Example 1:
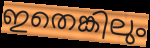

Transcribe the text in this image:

ഇതെങ്കിലും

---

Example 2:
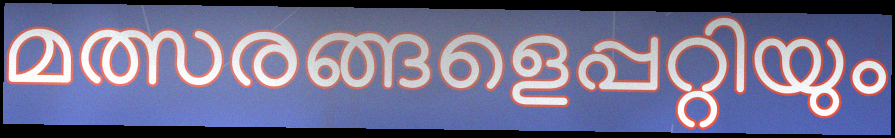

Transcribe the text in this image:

മത്സരങ്ങളെപ്പറ്റിയും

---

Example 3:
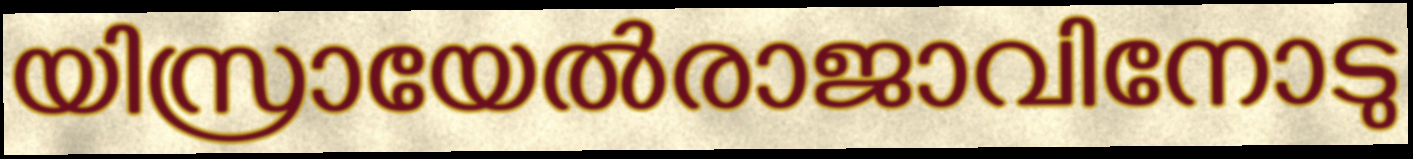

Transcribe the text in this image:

യിസ്രായേൽരാജാവിനോടു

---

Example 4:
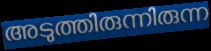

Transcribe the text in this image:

അടുത്തിരുന്നിരുന്ന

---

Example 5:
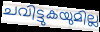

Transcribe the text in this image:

ചവിട്ടുകയുമില്ല